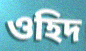
ওহিদ